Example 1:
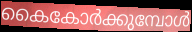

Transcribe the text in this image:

കൈകോർക്കുമ്പോൾ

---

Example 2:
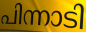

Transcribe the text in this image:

പിന്നാടി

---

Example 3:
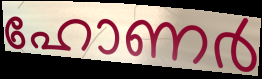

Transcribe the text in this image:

ഹോണർ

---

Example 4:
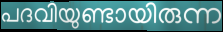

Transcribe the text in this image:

പദവിയുണ്ടായിരുന്ന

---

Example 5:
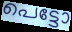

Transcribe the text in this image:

പെട്ടോ